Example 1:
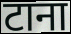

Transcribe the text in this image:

टाना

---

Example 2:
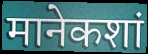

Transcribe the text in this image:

मानेकशां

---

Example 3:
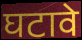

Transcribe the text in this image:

घटावे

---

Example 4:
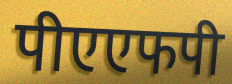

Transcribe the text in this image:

पीएएफपी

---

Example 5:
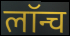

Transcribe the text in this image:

लॉन्च